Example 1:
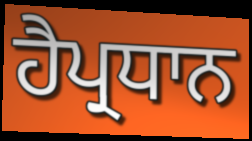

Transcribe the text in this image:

ਹੈਪ੍ਰਧਾਨ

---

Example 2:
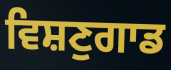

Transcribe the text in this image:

ਵਿਸ਼ਣੁਗਾਡ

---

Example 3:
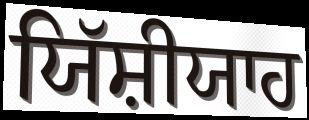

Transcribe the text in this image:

ਯਿੱਸ਼ੀਯਾਹ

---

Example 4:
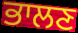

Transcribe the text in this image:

ਭਾਲਣ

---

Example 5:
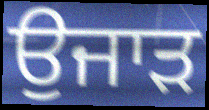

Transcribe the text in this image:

ਉੁਜਾੜ